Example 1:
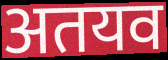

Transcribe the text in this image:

अतयव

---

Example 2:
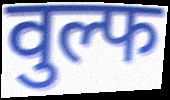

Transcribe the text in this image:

वुल्फ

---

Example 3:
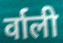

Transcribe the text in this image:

र्वाली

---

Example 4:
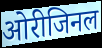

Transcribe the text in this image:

ओरीजिनल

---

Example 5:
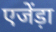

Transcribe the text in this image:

एजेंड़ा